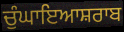
ਚੁੰਘਾਇਆਸ਼ਰਾਬ